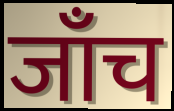
जाँच